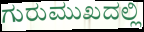
ಗುರುಮುಖದಲ್ಲಿ